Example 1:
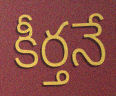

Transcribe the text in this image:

కీర్తనే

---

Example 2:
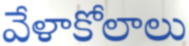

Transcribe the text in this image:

వేళాకోలాలు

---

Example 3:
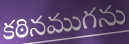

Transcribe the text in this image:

కఠినముగను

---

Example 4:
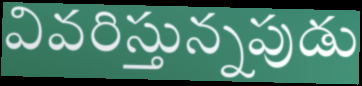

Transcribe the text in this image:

వివరిస్తున్నపుడు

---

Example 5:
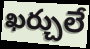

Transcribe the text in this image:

ఖర్చులే